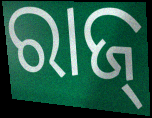
ରାଜ୍